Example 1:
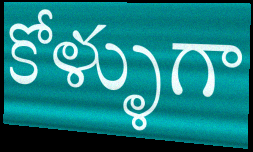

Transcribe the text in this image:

కోళ్ళుగా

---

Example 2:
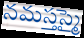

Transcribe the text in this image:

నమస్తస్మై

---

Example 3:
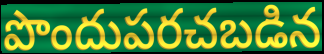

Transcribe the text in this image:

పొందుపరచబడిన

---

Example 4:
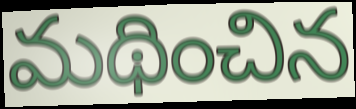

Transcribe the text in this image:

మథించిన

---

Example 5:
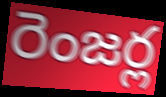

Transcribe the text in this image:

రెంజర్ల